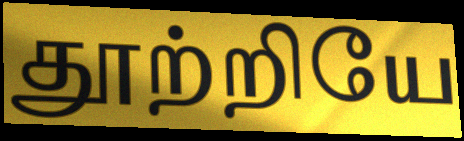
தூற்றியே